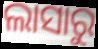
ଲାସାରୁ